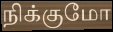
நிக்குமோ